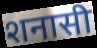
शनासी